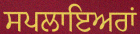
ਸਪਲਾਇਅਰਾਂ